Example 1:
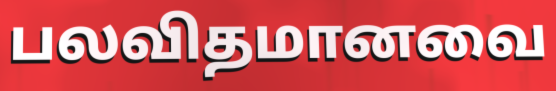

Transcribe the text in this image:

பலவிதமானவை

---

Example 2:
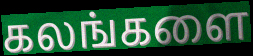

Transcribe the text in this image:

கலங்களை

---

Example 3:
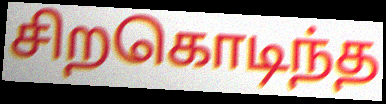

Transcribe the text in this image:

சிறகொடிந்த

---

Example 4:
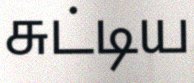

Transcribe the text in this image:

சுட்டிய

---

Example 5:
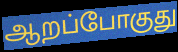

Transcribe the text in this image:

ஆறப்போகுது